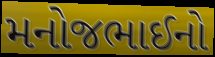
મનોજભાઈનો